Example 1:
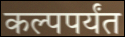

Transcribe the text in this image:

कल्पपर्यंत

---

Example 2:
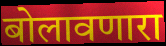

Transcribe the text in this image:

बोलावणारा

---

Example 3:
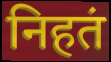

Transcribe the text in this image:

निहतं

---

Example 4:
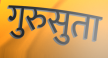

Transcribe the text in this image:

गुरुसुता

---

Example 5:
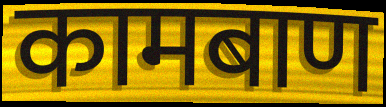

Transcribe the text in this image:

कामबाण